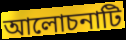
আলোচনাটি